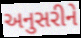
અનુસરીને